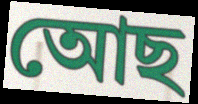
আেছ